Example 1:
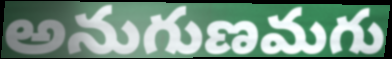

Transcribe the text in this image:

అనుగుణమగు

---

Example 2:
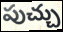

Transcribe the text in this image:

పుచ్చు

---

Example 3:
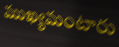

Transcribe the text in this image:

ముఖ్యమంటారు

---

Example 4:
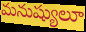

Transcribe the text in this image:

మనుష్యులూ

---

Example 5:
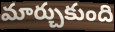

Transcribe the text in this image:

మార్చుకుంది